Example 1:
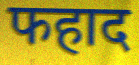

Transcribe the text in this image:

फहाद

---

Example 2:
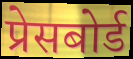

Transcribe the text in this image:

प्रेसबोर्ड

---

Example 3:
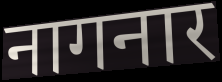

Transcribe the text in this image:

नागनार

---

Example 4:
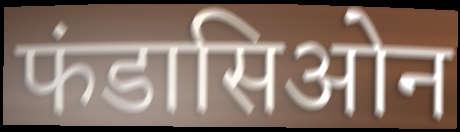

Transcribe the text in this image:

फंडासिओन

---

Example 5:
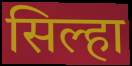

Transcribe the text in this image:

सिल्हा